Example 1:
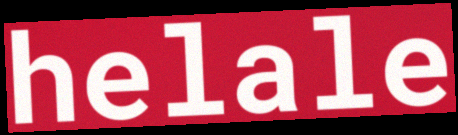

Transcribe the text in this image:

helale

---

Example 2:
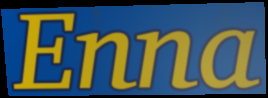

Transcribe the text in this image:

Enna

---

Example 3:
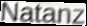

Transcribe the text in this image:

Natanz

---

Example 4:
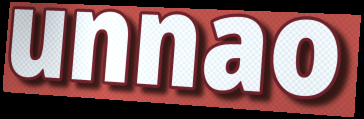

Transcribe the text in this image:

unnao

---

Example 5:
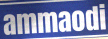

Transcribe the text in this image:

ammaodi